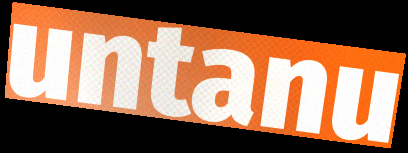
untanu